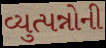
વ્યુત્પન્નોની